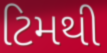
ટિમથી